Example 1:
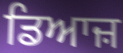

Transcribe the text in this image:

ਡਿਆਜ਼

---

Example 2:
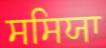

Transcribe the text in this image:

ਸਸਿਯਾ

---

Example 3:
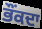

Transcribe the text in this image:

ਭੌਂਕਦਾ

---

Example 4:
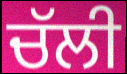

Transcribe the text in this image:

ਚੱਲੀ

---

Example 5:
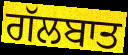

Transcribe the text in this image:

ਗੱਲਬਾਤ